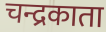
चन्द्रकाता